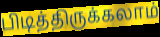
பிடித்திருக்கலாம்